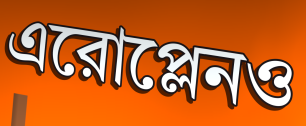
এরোপ্লেনও